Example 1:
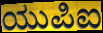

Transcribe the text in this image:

ಯುಪಿಐ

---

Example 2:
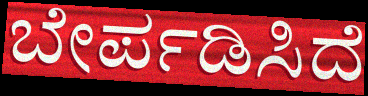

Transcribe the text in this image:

ಬೇರ್ಪಡಿಸಿದೆ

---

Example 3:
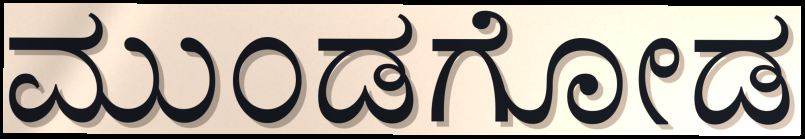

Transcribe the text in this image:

ಮುಂಡಗೋಡ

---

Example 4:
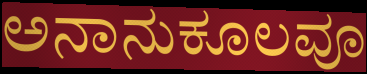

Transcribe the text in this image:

ಅನಾನುಕೂಲವೂ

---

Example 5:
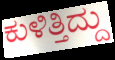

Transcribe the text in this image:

ಕುಳಿತ್ತಿದ್ದು